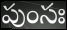
పుంసః